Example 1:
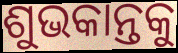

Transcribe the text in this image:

ଶୁଭକାନ୍ତକୁ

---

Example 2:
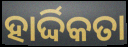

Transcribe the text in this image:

ହାର୍ଦ୍ଦିକତା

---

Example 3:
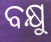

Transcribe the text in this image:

ବକ୍ଷୁ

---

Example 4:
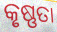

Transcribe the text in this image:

କୃଷ୍ଣତା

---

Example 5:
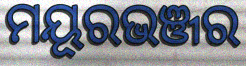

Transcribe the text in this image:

ମୟୂରଭଞ୍ଜର